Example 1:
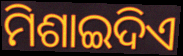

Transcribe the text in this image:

ମିଶାଇଦିଏ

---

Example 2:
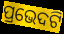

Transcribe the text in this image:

ପ୍ରଭେଦଟି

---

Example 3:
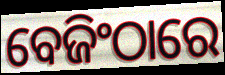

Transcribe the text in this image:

ବେଜିଂଠାରେ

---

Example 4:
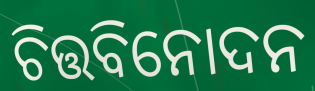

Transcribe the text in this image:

ଚିତ୍ତବିନୋଦନ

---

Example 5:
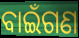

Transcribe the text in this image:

ବାଇଁଗଣ